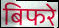
बिफरे